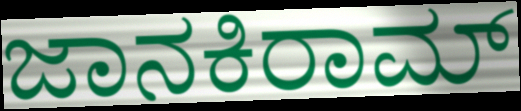
ಜಾನಕಿರಾಮ್